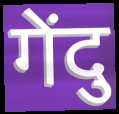
गेंदु